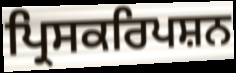
ਪ੍ਰਿਸਕਰਿਪਸ਼ਨ